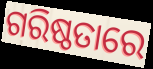
ଗରିଷ୍ଠତାରେ